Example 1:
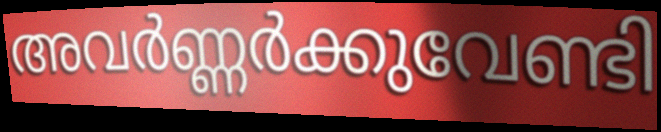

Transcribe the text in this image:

അവർണ്ണർക്കുവേണ്ടി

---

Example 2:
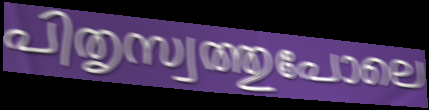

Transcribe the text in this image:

പിതൃസ്വത്തുപോലെ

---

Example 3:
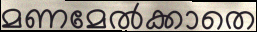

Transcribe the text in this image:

മണമേൽക്കാതെ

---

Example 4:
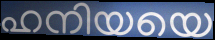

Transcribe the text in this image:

ഹനിയയെ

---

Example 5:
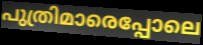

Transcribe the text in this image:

പുത്രിമാരെപ്പോലെ